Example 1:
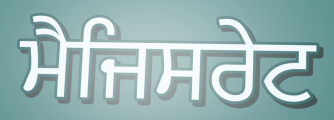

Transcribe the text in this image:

ਮੈਜਿਸਰੇਟ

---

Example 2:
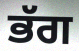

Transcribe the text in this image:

ਭੱਗ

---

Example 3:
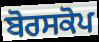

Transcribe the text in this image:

ਬੋਰਸਕੋਪ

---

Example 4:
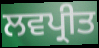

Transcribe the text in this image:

ਲਵਪ੍ਰੀਤ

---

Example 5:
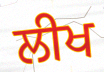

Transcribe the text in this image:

ਲੀਖ